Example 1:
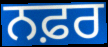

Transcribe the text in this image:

ਨਫ਼ਰ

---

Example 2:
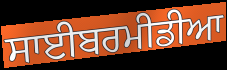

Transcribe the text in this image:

ਸਾਈਬਰਮੀਡੀਆ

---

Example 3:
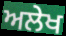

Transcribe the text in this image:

ਅਲੇਖ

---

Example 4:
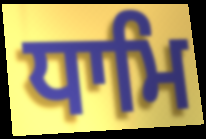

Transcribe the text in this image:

ਧਾਮਿ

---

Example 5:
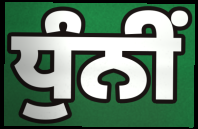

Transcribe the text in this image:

ਧੁੰਨੀਂ